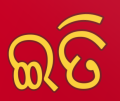
ଇତି